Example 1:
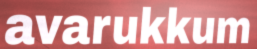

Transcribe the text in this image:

avarukkum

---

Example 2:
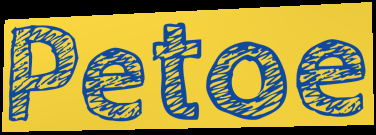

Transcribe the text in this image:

Petoe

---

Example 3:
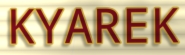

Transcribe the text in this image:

KYAREK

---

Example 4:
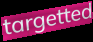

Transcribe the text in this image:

targetted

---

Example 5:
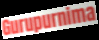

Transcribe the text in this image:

Gurupurnima